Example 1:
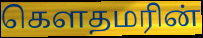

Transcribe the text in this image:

கௌதமரின்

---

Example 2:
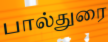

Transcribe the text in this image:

பால்துரை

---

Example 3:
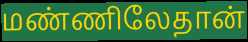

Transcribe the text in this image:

மண்ணிலேதான்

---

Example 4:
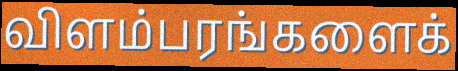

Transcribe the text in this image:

விளம்பரங்களைக்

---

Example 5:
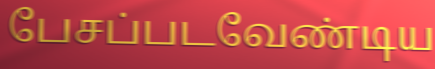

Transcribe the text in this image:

பேசப்படவேண்டிய